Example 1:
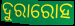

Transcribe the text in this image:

ଦୁରାରୋହ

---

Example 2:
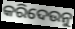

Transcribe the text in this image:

କରିଦେଉନୁ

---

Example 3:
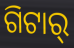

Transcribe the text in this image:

ଗିଟାର୍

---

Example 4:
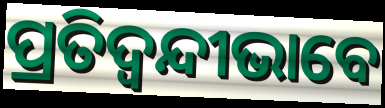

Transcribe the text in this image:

ପ୍ରତିଦ୍ୱନ୍ଦୀଭାବେ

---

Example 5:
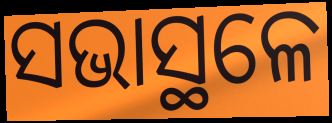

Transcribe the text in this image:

ସଭାସ୍ଥଳେ